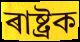
ৰাষ্ট্ৰক